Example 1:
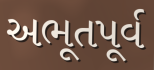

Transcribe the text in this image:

અભૂતપૂર્વ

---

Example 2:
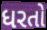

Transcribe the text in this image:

ધરતો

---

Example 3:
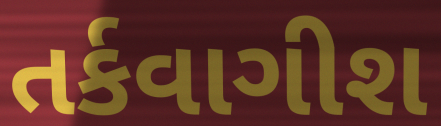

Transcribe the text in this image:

તર્કવાગીશ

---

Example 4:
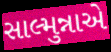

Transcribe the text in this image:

સાલ્મુન્નાએ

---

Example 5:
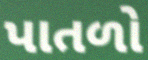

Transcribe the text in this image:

પાતળો